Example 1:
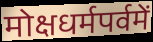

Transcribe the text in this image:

मोक्षधर्मपर्वमें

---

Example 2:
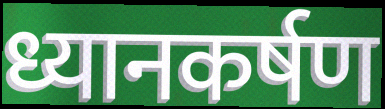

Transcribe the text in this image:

ध्यानकर्षण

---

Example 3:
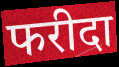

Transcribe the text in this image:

फरीदा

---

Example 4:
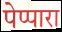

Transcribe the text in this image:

पेप्पारा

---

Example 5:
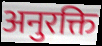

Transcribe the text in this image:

अनुरक्ति